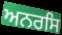
ਅਨਰਸਿ